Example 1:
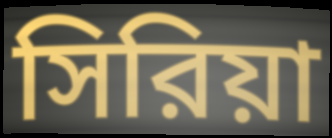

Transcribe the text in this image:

সিরিয়া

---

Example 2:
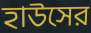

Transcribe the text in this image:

হাউসের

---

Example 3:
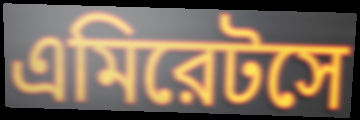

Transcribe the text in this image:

এমিরেটসে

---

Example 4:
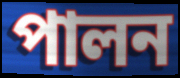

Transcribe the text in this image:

পালন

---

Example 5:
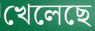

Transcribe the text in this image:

খেলেছে